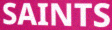
SAINTS